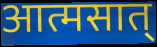
आत्मसात्